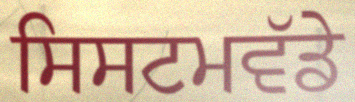
ਸਿਸਟਮਵੱਡੇ